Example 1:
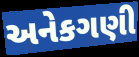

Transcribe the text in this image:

અનેકગણી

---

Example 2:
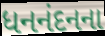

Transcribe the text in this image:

ધનનંદનના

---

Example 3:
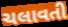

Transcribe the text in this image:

ચલાવતી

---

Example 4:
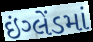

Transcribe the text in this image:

ઇંગ્લેંડમાં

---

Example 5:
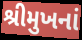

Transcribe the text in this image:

શ્રીમુખનાં